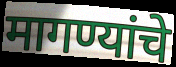
मागण्यांचे